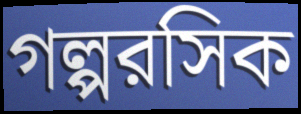
গল্পরসিক